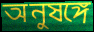
অনুষঙ্গে